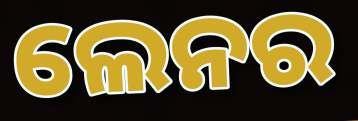
ଲେନର